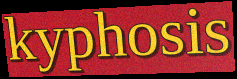
kyphosis